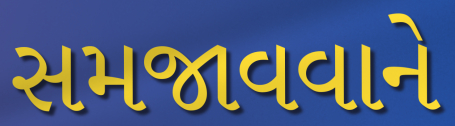
સમજાવવાને